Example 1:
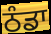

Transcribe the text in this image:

ਠੰਡਾ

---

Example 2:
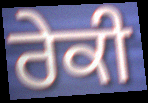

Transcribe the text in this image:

ਰੇਕੀ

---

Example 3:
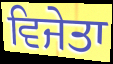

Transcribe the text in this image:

ਵਿਜੇਤਾ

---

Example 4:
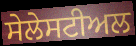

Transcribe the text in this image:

ਸੇਲੇਸਟੀਅਲ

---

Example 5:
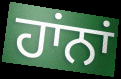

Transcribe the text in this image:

ਹਾਂਨਾਂ